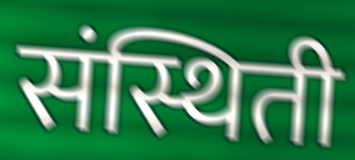
संस्थिती